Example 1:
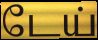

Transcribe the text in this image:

டேய்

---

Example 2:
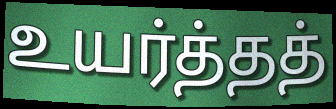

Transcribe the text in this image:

உயர்த்தத்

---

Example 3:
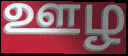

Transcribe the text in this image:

ஊழ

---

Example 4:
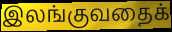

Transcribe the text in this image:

இலங்குவதைக்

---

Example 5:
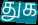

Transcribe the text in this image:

துக